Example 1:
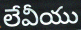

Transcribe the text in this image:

లేవీయు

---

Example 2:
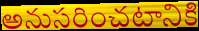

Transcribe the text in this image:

అనుసరించటానికి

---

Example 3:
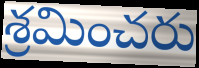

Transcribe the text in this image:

శ్రమించరు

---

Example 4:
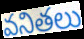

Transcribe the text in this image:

వనితలు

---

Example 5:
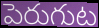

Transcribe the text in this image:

పెరుగుట